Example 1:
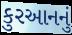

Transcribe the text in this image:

કુરઆનનું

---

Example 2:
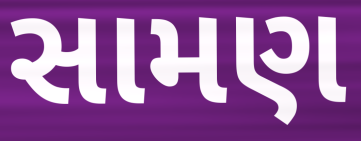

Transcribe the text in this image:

સામણ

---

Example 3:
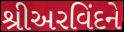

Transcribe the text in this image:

શ્રીઅરવિંદને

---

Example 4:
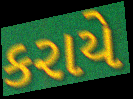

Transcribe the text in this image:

કરાયે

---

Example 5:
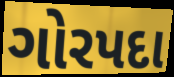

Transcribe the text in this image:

ગોરપદા